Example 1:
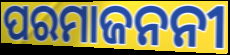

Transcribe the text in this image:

ପରମାଜନନୀ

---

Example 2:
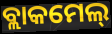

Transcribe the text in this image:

ବ୍ଲାକମେଲ୍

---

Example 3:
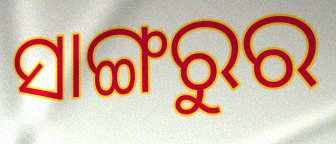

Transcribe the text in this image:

ସାଙ୍ଗରୁର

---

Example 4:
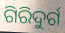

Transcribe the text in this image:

ଗିରିଦୁର୍ଗ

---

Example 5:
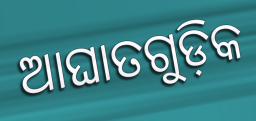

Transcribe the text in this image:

ଆଘାତଗୁଡ଼ିକ